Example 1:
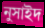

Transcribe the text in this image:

নুসাইদ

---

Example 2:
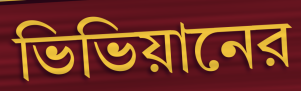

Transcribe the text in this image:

ভিভিয়ানের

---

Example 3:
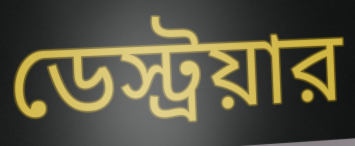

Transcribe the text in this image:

ডেস্ট্রয়ার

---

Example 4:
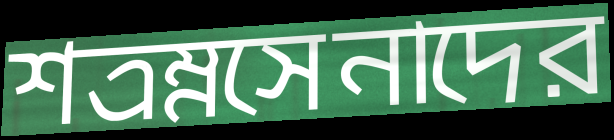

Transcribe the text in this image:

শত্রম্নসেনাদের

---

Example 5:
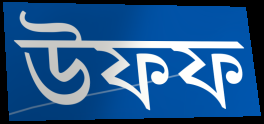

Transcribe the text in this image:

উফফ